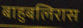
बाहुबलिरास